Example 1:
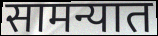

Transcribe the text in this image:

सामन्यात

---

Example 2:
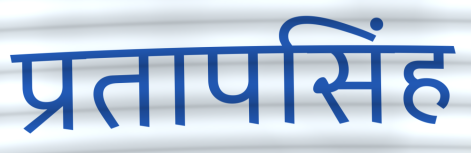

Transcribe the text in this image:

प्रतापसिंह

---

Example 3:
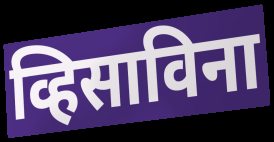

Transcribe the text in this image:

व्हिसाविना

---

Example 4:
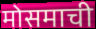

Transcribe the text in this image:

मोसमाची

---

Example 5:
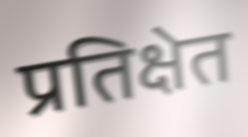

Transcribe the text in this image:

प्रतिक्षेत